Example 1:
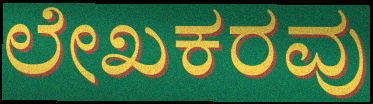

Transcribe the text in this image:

ಲೇಖಕರವು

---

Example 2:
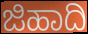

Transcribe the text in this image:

ಜಿಹಾದಿ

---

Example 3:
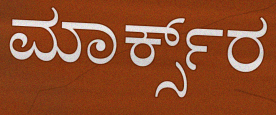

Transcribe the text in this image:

ಮಾರ್ಕ್ಸ್‌ರ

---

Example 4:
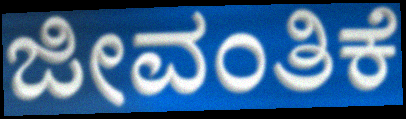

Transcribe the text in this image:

ಜೀವಂತಿಕೆ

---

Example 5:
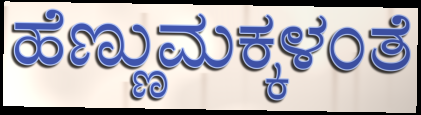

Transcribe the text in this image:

ಹೆಣ್ಣುಮಕ್ಕಳಂತೆ